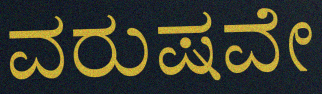
ವರುಷವೇ